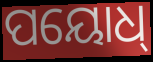
ପୟୋଧ୍